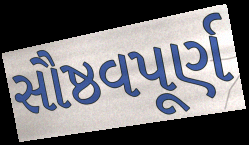
સૌષ્ઠવપૂર્ણ